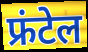
फ्रंटेल